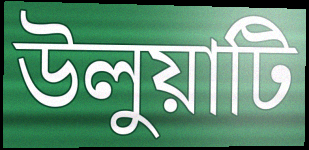
উলুয়াটি